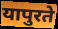
यापुरते